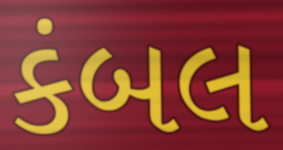
કંબલ